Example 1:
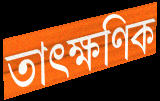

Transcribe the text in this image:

তাৎক্ষণিক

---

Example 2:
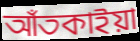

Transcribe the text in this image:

আঁতকাইয়া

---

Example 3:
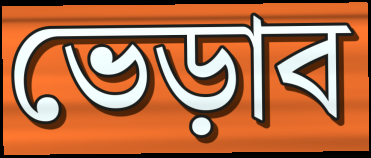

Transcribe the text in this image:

ভেড়াব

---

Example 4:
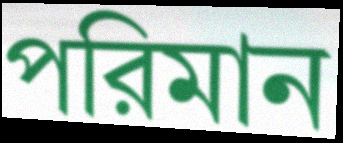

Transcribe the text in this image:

পরিমান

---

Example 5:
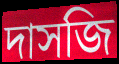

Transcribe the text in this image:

দাসজি